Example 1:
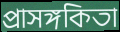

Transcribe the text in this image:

প্রাসঙ্গকিতা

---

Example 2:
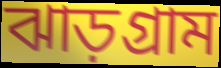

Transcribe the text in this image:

ঝাড়গ্রাম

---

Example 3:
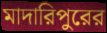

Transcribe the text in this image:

মাদারিপুরের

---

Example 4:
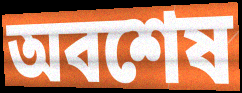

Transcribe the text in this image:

অবশেষ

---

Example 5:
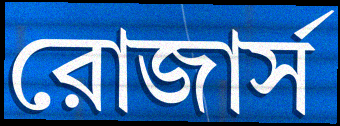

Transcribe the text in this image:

রোজার্স